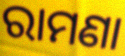
ରାମଣା